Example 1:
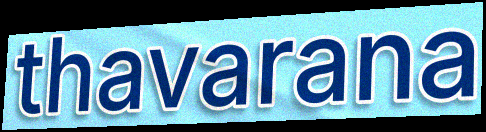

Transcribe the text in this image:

thavarana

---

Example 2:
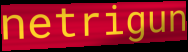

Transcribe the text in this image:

netrigun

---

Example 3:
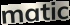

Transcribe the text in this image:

matic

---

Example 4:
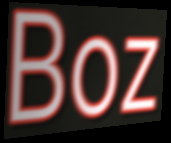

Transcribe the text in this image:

Boz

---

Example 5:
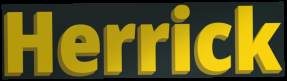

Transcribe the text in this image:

Herrick